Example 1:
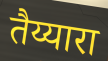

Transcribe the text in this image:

तैय्यारा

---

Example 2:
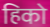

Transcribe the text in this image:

हिको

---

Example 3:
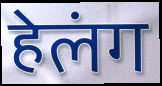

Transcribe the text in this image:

हेलंग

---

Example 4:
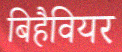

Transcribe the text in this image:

बिहैवियर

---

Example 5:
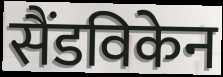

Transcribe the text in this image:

सैंडविकेन